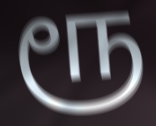
ரூ